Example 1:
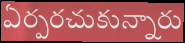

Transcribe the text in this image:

ఏర్పరచుకున్నారు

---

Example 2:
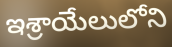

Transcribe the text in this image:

ఇశ్రాయేలులోని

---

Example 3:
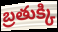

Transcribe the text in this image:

బ్రతుక్కి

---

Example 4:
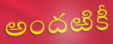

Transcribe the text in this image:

అందఱికీ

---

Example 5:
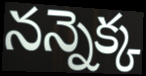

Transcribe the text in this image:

నన్నెక్క